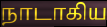
நாடாகிய